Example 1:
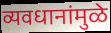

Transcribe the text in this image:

व्यवधानांमुळे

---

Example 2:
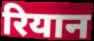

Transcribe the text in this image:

रियान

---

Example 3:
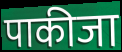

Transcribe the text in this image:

पाकीजा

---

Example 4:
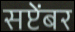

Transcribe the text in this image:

सप्टेंबर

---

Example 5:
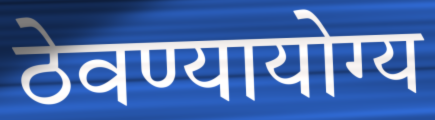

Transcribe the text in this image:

ठेवण्यायोग्य